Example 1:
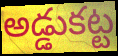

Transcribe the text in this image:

అడ్డుకట్ట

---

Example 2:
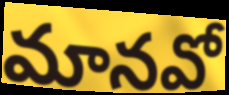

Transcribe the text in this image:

మానవో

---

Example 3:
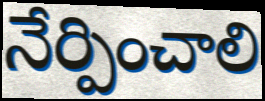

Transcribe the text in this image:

నేర్పించాలి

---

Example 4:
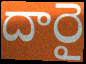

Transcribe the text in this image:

దారై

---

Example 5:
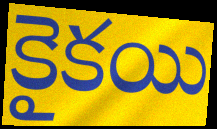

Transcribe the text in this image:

కైకయి